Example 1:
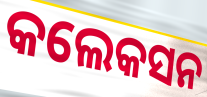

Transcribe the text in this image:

କଲେକସନ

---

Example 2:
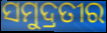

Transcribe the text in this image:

ସମୁଦ୍ରତୀର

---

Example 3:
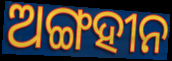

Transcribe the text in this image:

ଅଙ୍ଗହୀନ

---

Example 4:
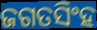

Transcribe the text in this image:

ଜଗତସିଂହ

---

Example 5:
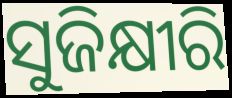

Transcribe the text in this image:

ସୁଜିକ୍ଷୀରି